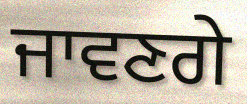
ਜਾਵਣਗੇ